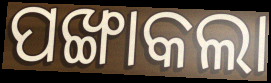
ପଙ୍ଖାକଲା